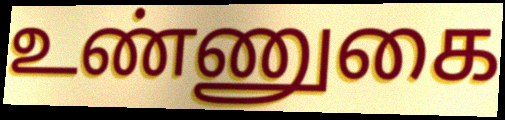
உண்ணுகை